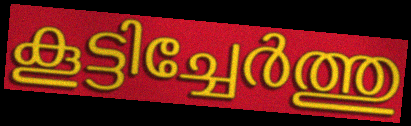
കൂട്ടിച്ചേർത്തു